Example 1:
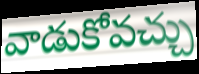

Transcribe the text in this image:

వాడుకోవచ్చు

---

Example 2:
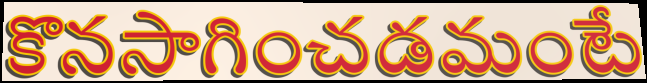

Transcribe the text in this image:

కొనసాగించడమంటే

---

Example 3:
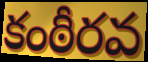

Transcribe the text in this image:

కంఠీరవ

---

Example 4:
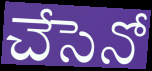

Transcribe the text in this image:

చేసెనో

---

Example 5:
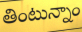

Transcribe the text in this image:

తింటున్నాం